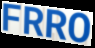
FRRO